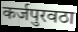
कर्जपुरवठा